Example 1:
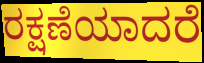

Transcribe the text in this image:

ರಕ್ಷಣೆಯಾದರೆ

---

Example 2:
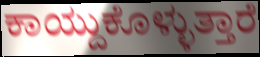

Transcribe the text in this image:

ಕಾಯ್ದುಕೊಳ್ಳುತ್ತಾರೆ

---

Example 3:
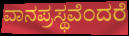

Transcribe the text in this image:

ವಾನಪ್ರಸ್ಥವೆಂದರೆ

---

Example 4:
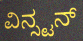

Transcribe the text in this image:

ವಿನ್ಸ್ಟನ್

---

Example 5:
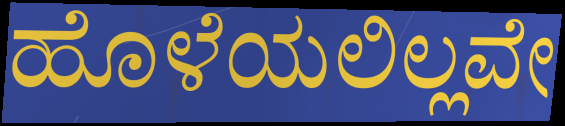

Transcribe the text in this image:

ಹೊಳೆಯಲಿಲ್ಲವೇ